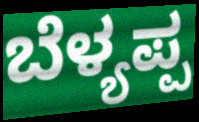
ಬೆಳ್ಯಪ್ಪ